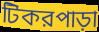
টিকরপাড়া